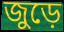
জুড়ে